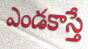
ఎండకాస్తే